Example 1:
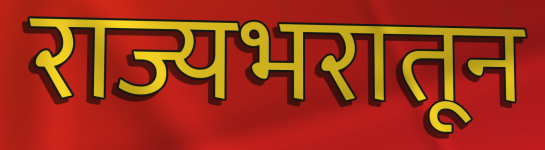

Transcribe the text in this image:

राज्यभरातून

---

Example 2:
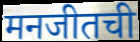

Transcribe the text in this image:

मनजीतची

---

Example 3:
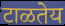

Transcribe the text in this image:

टाळतेय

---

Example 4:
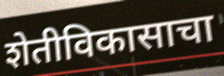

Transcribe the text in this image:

शेतीविकासाचा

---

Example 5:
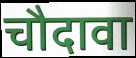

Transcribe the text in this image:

चौदावा